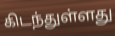
கிடந்துள்ளது